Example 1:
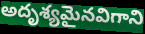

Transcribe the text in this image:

అదృశ్యమైనవిగాని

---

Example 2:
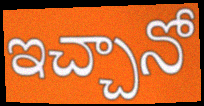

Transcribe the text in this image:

ఇచ్చానో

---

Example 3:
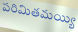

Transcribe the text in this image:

పరిమితమయ్యి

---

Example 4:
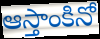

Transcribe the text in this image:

ఆస్తాంకినో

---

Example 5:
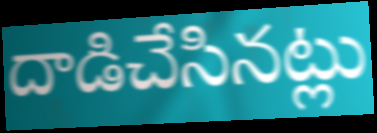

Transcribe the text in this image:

దాడిచేసినట్లు